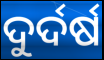
ଦୁର୍ଦର୍ଷ